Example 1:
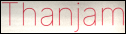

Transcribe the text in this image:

Thanjam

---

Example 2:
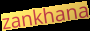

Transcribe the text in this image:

zankhana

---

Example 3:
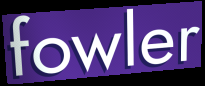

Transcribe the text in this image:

fowler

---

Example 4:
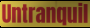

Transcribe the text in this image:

Untranquil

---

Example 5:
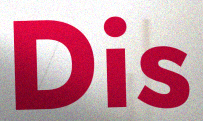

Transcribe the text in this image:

Dis